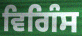
ਵਿਗਿੰਸ